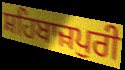
ਸ਼ਹਿਬਾਜ਼ਪੁਰੀ